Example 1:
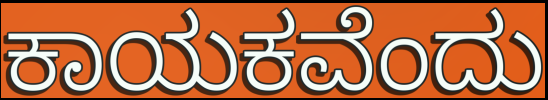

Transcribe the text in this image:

ಕಾಯಕವೆಂದು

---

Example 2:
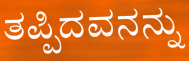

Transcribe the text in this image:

ತಪ್ಪಿದವನನ್ನು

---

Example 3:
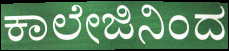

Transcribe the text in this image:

ಕಾಲೇಜಿನಿಂದ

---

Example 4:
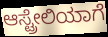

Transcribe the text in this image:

ಆಸ್ಟ್ರೇಲಿಯಾಗೆ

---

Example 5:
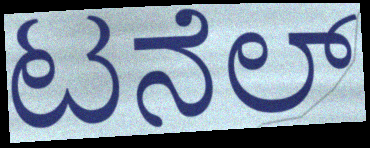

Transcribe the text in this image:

ಟನೆಲ್